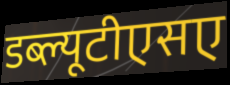
डब्ल्यूटीएसए